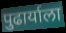
पुढार्याला